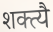
शक्त्यै